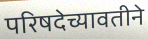
परिषदेच्यावतीने